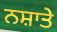
ਨਸ਼ਾਤੇ